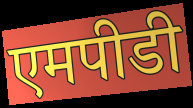
एमपीडी